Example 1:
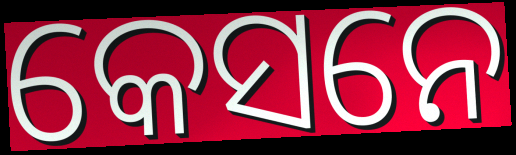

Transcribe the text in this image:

କେସନେ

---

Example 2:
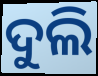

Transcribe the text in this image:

ଦୁଲି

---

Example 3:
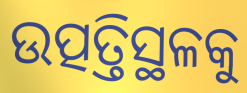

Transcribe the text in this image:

ଉତ୍ପତ୍ତିସ୍ଥଳକୁ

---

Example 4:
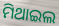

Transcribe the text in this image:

ମିଥାଇଲ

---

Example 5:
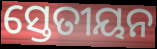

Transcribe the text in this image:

ସ୍ତେତୀୟନ